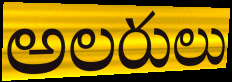
అలరులు